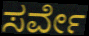
ಸರ್ವೇ